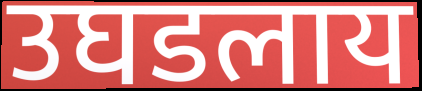
उघडलाय